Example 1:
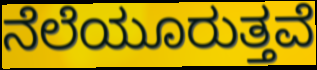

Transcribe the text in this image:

ನೆಲೆಯೂರುತ್ತವೆ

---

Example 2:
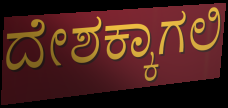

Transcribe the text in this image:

ದೇಶಕ್ಕಾಗಲಿ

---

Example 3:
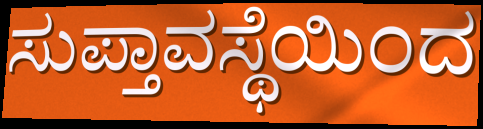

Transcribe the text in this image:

ಸುಪ್ತಾವಸ್ಥೆಯಿಂದ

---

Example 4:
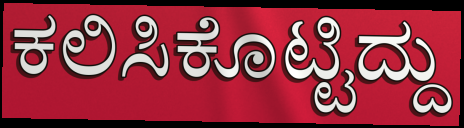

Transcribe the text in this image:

ಕಲಿಸಿಕೊಟ್ಟಿದ್ದು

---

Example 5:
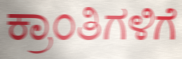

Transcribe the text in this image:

ಕ್ರಾಂತಿಗಳಿಗೆ